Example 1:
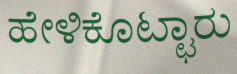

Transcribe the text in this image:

ಹೇಳಿಕೊಟ್ಟಾರು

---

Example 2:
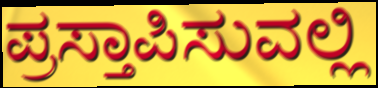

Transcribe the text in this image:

ಪ್ರಸ್ತಾಪಿಸುವಲ್ಲಿ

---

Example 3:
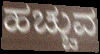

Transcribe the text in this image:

ಹಚ್ಚುವ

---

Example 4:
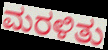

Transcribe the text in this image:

ಮರಳಿತು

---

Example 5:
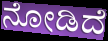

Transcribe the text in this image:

ನೋಡಿದೆ